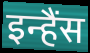
इन्हैंस